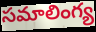
సమాలింగ్య